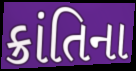
ક્રાંતિના